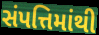
સંપત્તિમાંથી